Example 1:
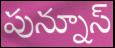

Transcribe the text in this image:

పున్నూస్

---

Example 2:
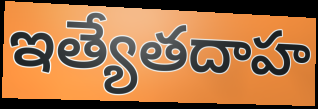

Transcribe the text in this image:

ఇత్యేతదాహ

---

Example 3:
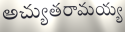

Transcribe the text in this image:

అచ్యుతరామయ్య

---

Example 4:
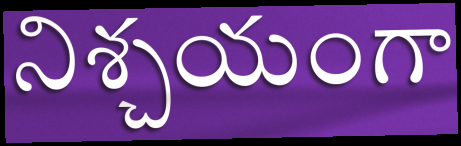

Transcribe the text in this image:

నిశ్చయంగా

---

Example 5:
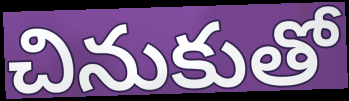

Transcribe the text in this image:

చినుకుతో